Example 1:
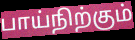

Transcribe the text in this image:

பாய்நிற்கும்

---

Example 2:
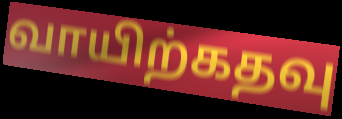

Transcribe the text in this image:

வாயிற்கதவு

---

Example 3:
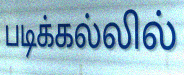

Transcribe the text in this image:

படிக்கல்லில்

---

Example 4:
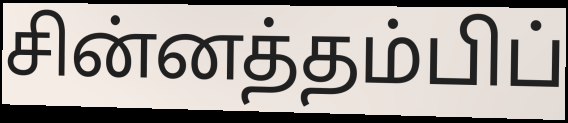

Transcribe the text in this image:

சின்னத்தம்பிப்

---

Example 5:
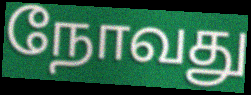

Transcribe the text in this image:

நோவது